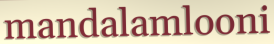
mandalamlooni